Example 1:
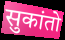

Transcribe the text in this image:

सुकांतो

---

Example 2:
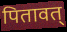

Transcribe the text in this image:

पितावत्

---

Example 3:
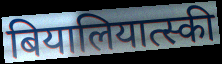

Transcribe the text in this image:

बियालियात्स्की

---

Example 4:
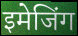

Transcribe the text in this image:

इमेजिंग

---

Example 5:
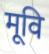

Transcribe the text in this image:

मूवि